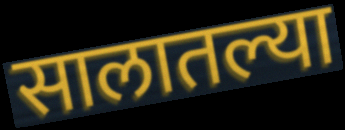
सालातल्या